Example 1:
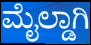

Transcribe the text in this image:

ಮೈಲ್ಡಾಗಿ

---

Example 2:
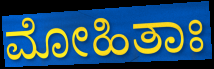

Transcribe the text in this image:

ಮೋಹಿತಾಃ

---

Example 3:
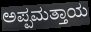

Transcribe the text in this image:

ಅಪ್ಪಮತ್ತಾಯ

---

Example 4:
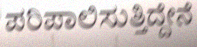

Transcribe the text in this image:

ಪರಿಪಾಲಿಸುತ್ತಿದ್ದೇನೆ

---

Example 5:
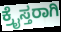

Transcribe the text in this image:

ಕ್ರೈಸ್ತರಾಗಿ